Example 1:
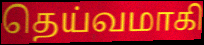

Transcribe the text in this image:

தெய்வமாகி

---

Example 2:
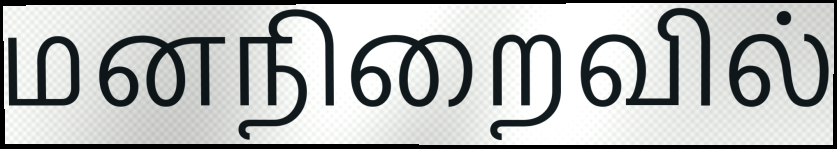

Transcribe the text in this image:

மனநிறைவில்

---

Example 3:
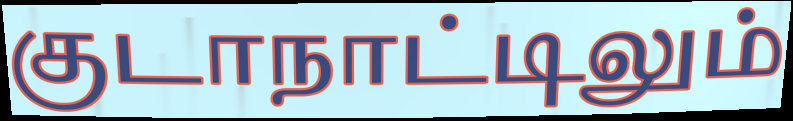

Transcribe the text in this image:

குடாநாட்டிலும்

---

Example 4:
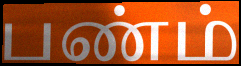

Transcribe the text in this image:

பண்ம்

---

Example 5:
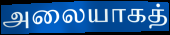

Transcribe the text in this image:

அலையாகத்